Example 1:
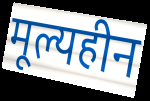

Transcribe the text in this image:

मूल्यहीन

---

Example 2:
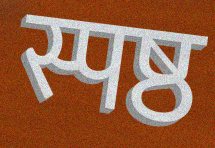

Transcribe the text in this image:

स्पष्ठ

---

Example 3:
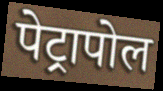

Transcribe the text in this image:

पेट्रापोल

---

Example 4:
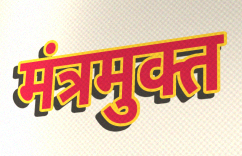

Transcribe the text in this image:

मंत्रमुक्त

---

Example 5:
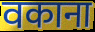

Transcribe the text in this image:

वकाना